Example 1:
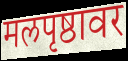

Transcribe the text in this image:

मलपृष्ठावर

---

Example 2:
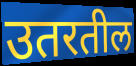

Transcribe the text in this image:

उतरतील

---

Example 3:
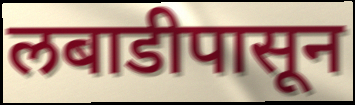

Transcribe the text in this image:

लबाडीपासून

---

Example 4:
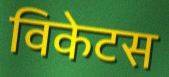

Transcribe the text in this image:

विकेटस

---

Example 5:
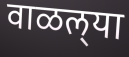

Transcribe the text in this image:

वाळल्या